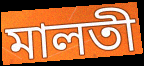
মালতী